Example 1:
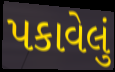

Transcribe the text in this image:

પકાવેલું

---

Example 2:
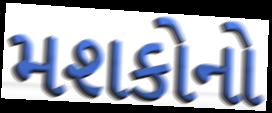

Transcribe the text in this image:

મશકોનો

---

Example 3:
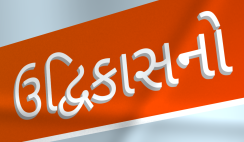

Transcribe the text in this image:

ઉદ્વિકાસનો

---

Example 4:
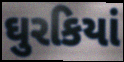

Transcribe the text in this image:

ઘુરકિયાં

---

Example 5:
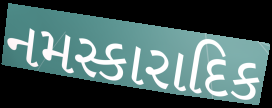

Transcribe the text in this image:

નમસ્કારાદિક